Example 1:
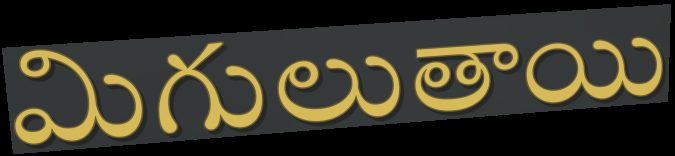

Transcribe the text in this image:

మిగులుతాయి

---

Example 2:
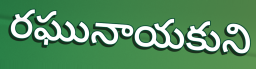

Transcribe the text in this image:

రఘునాయకుని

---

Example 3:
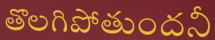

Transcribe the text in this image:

తొలగిపోతుందనీ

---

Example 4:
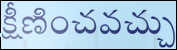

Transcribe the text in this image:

క్షీణించవచ్చు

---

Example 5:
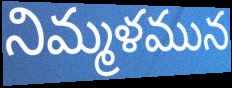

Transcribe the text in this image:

నిమ్మళమున